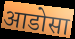
आडोसा